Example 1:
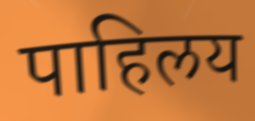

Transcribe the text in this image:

पाहिलय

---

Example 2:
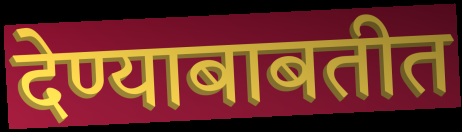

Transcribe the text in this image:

देण्याबाबतीत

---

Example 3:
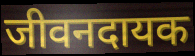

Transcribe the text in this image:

जीवनदायक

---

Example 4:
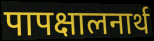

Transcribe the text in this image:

पापक्षालनार्थ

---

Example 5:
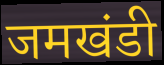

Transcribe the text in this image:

जमखंडी